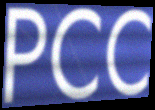
PCC